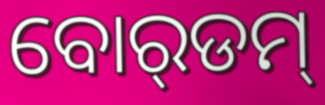
ବୋର୍‌ଡମ୍